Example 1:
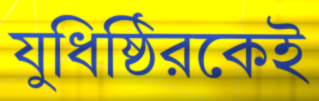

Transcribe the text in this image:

যুধিষ্ঠিরকেই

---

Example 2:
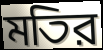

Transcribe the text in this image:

মতির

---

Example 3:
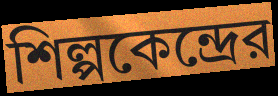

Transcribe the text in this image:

শিল্পকেন্দ্রের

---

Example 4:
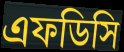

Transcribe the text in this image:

এফডিসি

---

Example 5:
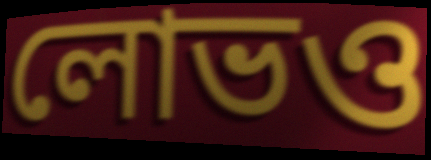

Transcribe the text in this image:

লোভও